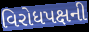
વિરોધપક્ષની